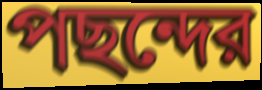
পছন্দের